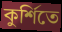
কুর্শিতে